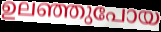
ഉലഞ്ഞുപോയ